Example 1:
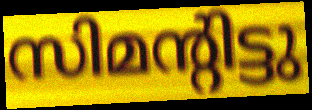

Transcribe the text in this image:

സിമന്റിട്ടു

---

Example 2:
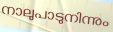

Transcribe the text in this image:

നാലുപാടുനിന്നും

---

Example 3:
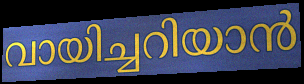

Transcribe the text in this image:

വായിച്ചറിയാൻ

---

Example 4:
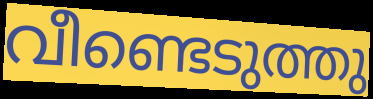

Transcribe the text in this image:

വീണ്ടെടുത്തു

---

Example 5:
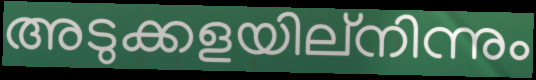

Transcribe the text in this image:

അടുക്കളയില്നിന്നും